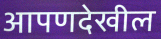
आपणदेखील